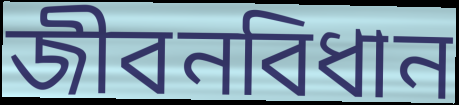
জীবনবিধান